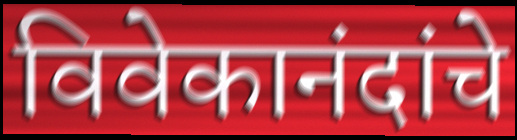
विवेकानंदांचे